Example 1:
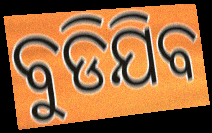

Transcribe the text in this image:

ବୁଡିଯିବ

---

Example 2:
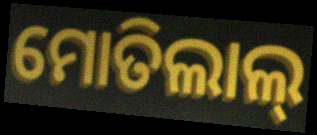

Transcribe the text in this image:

ମୋତିଲାଲ୍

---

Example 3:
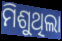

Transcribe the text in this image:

ମିଶୁଥିଲା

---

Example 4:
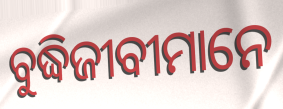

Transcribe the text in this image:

ବୁଦ୍ଧିଜୀବୀମାନେ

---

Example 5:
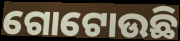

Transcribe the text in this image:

ଗୋଟୋଉଛି